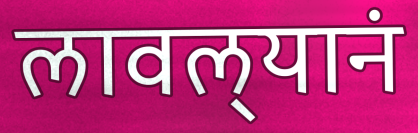
लावल्यानं